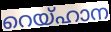
റെയ്ഹാന